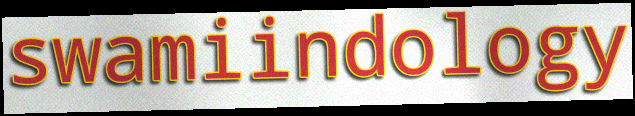
swamiindology